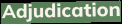
Adjudication